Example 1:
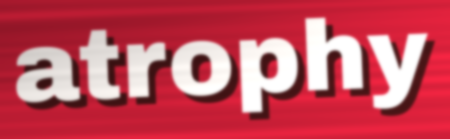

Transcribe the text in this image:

atrophy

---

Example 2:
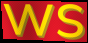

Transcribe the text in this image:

ws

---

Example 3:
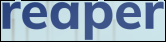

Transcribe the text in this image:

reaper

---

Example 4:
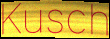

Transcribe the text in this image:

Kusch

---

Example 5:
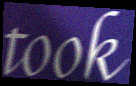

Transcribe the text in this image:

took